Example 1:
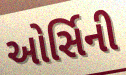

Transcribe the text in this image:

ઓર્સિની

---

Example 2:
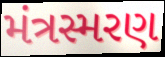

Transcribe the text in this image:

મંત્રસ્મરણ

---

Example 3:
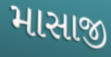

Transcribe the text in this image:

માસાજી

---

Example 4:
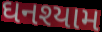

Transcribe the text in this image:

ઘનશ્યામ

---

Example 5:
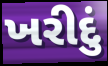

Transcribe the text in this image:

ખરીદું